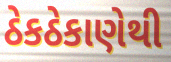
ઠેકઠેકાણેથી